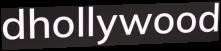
dhollywood